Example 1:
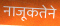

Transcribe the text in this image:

नाजूकतेने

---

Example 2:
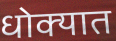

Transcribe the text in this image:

धोक्‍यात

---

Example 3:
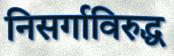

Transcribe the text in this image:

निसर्गाविरुद्ध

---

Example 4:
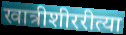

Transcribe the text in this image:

खात्रीशीररीत्या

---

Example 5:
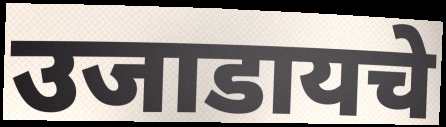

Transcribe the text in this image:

उजाडायचे